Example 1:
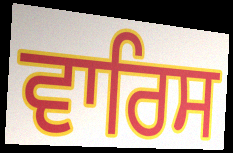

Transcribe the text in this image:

ਵਾਰਿਸ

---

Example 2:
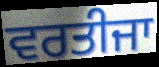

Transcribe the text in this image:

ਵਰਤੀਜਾ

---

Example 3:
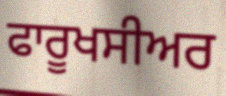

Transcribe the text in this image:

ਫਾਰੂਖਸੀਅਰ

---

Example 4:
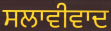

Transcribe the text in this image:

ਸਲਾਵੀਵਾਦ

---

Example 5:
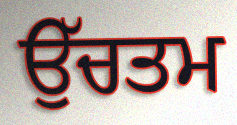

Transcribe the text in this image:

ਉੱਚਤਮ